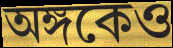
অঙ্গকেও